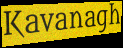
Kavanagh